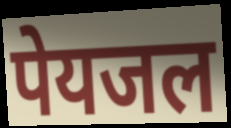
पेयजल